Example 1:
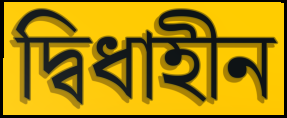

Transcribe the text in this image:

দ্বিধাহীন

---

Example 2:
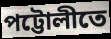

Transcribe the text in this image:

পট্টোলীতে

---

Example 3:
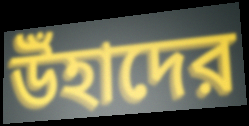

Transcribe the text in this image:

উঁহাদের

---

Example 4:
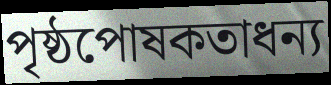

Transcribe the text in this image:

পৃষ্ঠপোষকতাধন্য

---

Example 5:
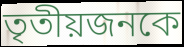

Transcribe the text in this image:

তৃতীয়জনকে